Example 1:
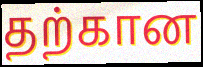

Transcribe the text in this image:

தற்கான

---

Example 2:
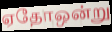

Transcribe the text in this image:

ஏதோஒன்று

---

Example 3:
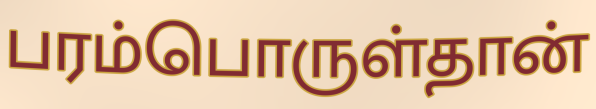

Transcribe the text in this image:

பரம்பொருள்தான்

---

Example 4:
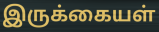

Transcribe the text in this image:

இருக்கையள்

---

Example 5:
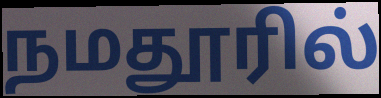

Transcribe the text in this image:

நமதூரில்